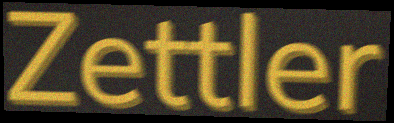
Zettler